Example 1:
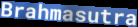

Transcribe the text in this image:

Brahmasutra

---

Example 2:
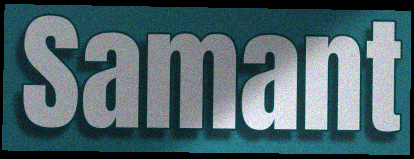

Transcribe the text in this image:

Samant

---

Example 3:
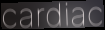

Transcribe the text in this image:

cardiac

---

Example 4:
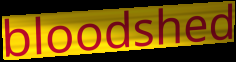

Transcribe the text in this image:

bloodshed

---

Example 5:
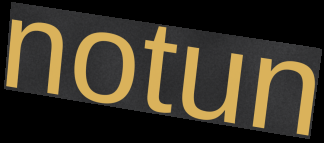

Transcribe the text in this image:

notun